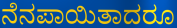
ನೆನಪಾಯಿತಾದರೂ